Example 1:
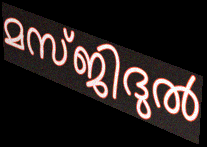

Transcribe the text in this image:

മസ്ജിദുൽ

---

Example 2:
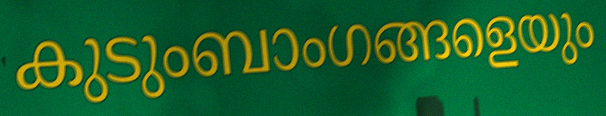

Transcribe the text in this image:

കുടുംബാംഗങ്ങളെയും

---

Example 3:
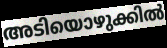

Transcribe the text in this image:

അടിയൊഴുക്കിൽ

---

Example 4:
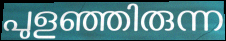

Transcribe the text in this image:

പുളഞ്ഞിരുന്ന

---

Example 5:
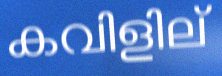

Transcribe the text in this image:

കവിളില്